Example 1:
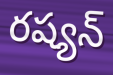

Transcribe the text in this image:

రష్యన్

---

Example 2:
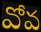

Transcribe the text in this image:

వోవ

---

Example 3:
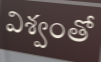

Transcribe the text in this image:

విశ్వంతో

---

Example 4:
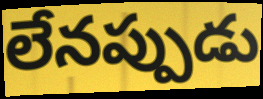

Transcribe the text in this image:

లేనప్పుడు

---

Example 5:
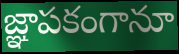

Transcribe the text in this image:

జ్ఞాపకంగానూ